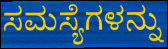
ಸಮಸ್ಯೆಗಳನ್ನು